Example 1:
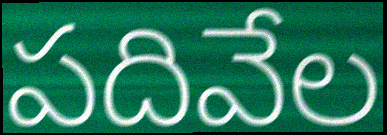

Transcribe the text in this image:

పదివేల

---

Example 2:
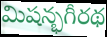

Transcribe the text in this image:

మిషన్భగీరథ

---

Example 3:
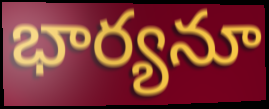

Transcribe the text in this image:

భార్యనూ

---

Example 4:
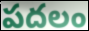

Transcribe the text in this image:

పదలం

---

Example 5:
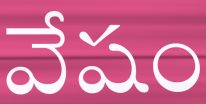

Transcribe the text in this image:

వేషం